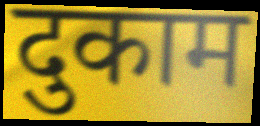
दुकाम